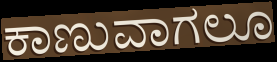
ಕಾಣುವಾಗಲೂ